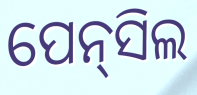
ପେନ୍‍ସିଲ